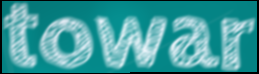
towar